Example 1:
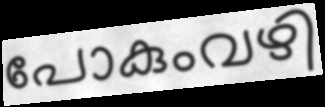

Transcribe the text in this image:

പോകുംവഴി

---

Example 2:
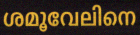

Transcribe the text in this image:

ശമൂവേലിനെ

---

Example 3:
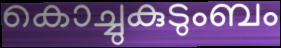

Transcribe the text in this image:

കൊച്ചുകുടുംബം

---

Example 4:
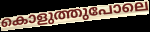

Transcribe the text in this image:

കൊളുത്തുപോലെ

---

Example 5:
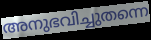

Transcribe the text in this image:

അനുഭവിച്ചുതന്നെ